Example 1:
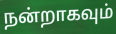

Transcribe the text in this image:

நன்றாகவும்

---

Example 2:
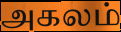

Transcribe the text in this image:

அகலம்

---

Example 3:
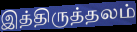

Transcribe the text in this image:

இத்திருத்தலம்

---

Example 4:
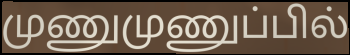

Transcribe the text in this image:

முணுமுணுப்பில்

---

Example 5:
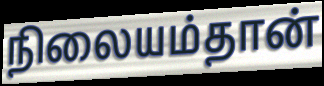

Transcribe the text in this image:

நிலையம்தான்